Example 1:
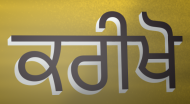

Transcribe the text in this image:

ਕਰੀਖੋ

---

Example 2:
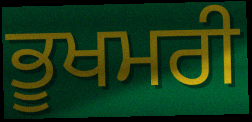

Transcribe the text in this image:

ਭੂਖਮਰੀ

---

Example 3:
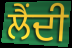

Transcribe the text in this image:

ਲੈਂਦੀ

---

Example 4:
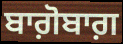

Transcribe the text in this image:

ਬਾਗ਼ੋਬਾਗ਼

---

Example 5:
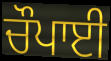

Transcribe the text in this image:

ਚੌਪਾਈ